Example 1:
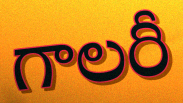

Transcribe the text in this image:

గాలరీ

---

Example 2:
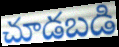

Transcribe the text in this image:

చూడబడి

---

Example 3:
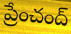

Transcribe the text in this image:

ప్రేంచంద్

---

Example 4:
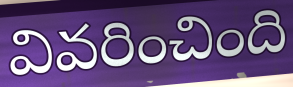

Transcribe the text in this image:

వివరించింది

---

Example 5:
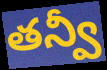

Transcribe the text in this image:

తన్వీ